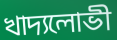
খাদ্যলোভী